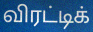
விரட்டிக்